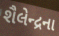
શૈલેન્દ્રના